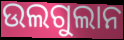
ଉଲଗୁଲାନ